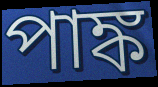
পাঙ্ক